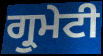
ਗ੍ਰੁਮੇਟੀ